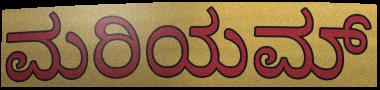
ಮರಿಯಮ್